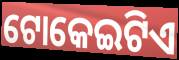
ଟୋକେଇଟିଏ